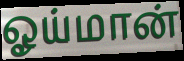
ஓய்மான்